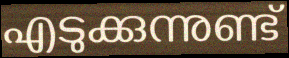
എടുക്കുന്നുണ്ട്